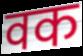
वक